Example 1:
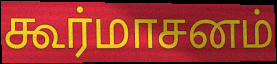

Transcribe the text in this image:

கூர்மாசனம்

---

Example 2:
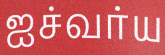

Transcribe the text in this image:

ஐச்வர்ய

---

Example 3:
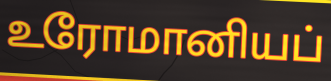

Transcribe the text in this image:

உரோமானியப்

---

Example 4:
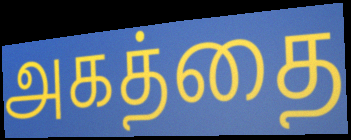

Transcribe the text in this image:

அகத்தை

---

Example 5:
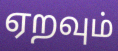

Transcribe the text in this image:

ஏறவும்